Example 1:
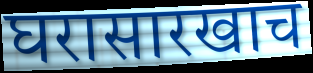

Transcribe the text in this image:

घरासारखाच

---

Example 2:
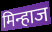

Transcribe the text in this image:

मिन्हाज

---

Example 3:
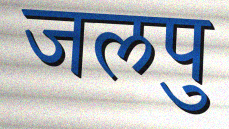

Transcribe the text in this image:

जलपु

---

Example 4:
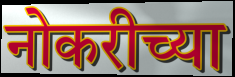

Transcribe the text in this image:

नोकरीच्या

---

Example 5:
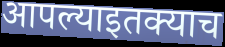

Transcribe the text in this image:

आपल्याइतक्याच